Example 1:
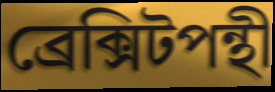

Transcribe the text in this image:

ব্রেক্সিটপন্থী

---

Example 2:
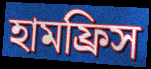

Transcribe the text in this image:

হামফ্রিস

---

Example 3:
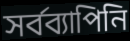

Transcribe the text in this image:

সর্বব্যাপিনি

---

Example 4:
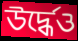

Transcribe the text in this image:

উর্দ্ধেও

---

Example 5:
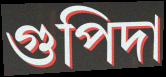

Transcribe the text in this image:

গুপিদা